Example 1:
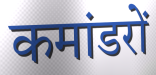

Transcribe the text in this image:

कमांडरों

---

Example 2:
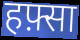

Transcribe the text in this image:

हफ़्सा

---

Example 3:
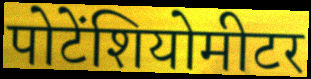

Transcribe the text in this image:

पोटेंशियोमीटर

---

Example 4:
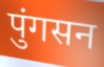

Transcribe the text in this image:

पुंगसन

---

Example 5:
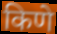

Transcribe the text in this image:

किणे